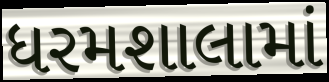
ધરમશાલામાં